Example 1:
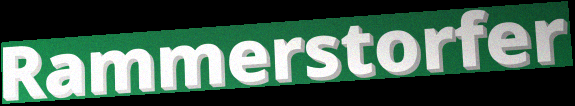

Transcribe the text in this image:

Rammerstorfer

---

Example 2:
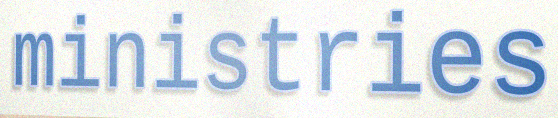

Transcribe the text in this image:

ministries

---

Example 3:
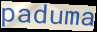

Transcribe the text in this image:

paduma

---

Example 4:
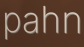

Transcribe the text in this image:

pahn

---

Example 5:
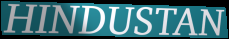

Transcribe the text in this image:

HINDUSTAN